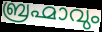
ബ്രഹ്മാവും